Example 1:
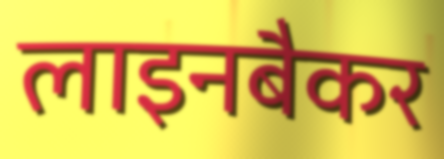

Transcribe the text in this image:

लाइनबैकर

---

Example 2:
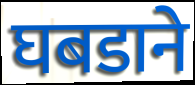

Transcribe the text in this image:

घबडाने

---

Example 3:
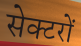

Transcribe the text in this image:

सेक्टरों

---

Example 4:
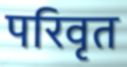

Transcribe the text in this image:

परिवृत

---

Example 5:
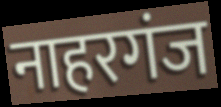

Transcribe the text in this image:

नाहरगंज